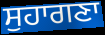
ਸੁਹਾਗਣਾ